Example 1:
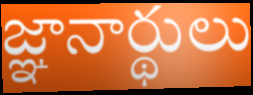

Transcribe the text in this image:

జ్ఞానార్థులు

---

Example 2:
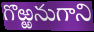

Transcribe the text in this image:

గొఱ్ఱనుగాని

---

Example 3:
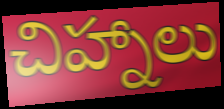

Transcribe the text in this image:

చిహ్నాలు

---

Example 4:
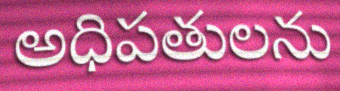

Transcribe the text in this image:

అధిపతులను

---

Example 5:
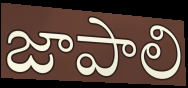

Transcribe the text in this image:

జాపాలి